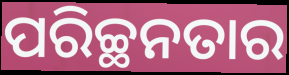
ପରିଚ୍ଛନତାର